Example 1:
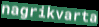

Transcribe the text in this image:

nagrikvarta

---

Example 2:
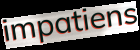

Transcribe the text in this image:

impatiens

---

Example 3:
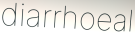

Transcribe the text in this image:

diarrhoeal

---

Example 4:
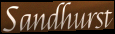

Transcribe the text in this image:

Sandhurst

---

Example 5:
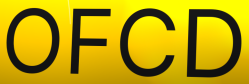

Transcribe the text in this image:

OFCD